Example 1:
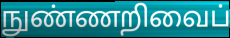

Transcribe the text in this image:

நுண்ணறிவைப்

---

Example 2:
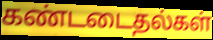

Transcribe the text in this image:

கண்டடைதல்கள்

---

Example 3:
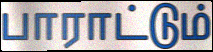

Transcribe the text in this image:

பாராட்டும்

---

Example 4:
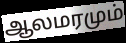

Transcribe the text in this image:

ஆலமரமும்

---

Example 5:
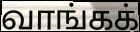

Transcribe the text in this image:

வாங்கக்